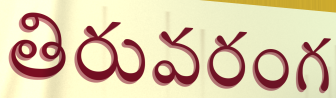
తిరువరంగ